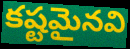
కష్టమైనవి